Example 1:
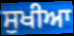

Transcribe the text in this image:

ਸੁਖੀਆ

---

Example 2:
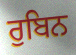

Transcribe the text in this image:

ਰੁਬਿਨ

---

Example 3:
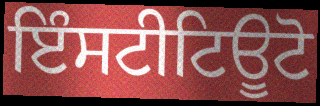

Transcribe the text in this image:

ਇੰਸਟੀਟਿਊਟੋ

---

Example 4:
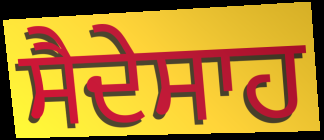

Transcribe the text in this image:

ਸੈਦੇਸਾਹ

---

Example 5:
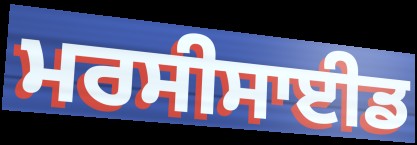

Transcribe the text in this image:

ਮਰਸੀਸਾਈਡ